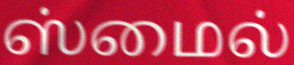
ஸ்மைல்